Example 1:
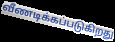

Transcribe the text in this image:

வீணடிக்கப்படுகிறது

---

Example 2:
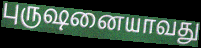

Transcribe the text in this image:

புருஷனையாவது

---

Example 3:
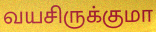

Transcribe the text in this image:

வயசிருக்குமா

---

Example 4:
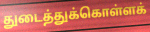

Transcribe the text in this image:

துடைத்துக்கொள்ளக்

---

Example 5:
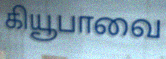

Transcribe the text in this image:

கியூபாவை